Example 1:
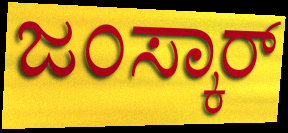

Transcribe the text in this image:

ಜಂಸ್ಕಾರ್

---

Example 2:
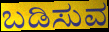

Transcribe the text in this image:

ಬಡಿಸುವ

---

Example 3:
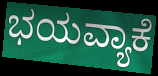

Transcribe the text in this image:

ಭಯವ್ಯಾಕೆ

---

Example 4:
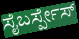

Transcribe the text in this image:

ಸೈಬರ್ಸ್ಪೇಸ್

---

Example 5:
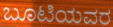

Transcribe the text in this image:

ಬೂಟಿಯವರ